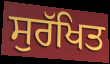
ਸੁਰੱਖਿਤ